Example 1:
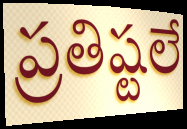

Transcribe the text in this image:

ప్రతిష్టలే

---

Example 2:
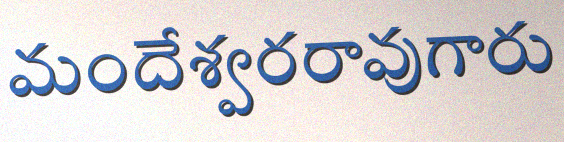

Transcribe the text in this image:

మందేశ్వరరావుగారు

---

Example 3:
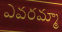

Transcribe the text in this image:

ఎవరమ్మా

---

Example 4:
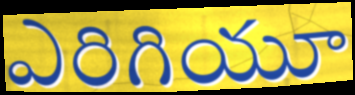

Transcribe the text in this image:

ఎరిగియూ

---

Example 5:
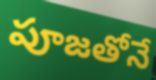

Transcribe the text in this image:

పూజతోనే